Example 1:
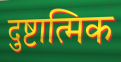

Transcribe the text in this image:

दुष्टात्मिक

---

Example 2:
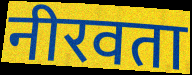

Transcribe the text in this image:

नीरवता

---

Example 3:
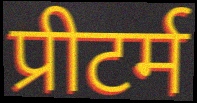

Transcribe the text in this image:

प्रीटर्म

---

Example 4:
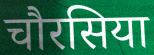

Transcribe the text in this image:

चौरसिया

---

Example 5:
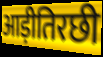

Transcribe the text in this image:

आड़ीतिरछी